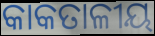
କାକତାଳୀୟ